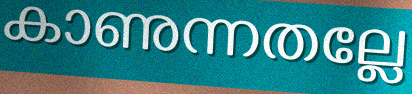
കാണുന്നതല്ലേ